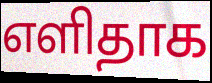
எளிதாக